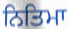
ਨਿਤਿਮਾ